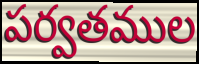
పర్వతముల